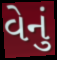
વેનું